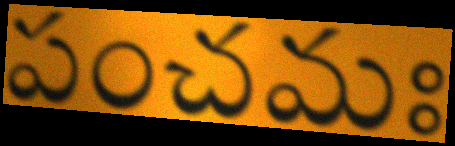
పంచమః